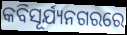
କବିସୂର୍ଯ୍ୟନଗରରେ